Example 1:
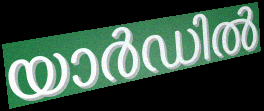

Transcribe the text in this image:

യാർഡിൽ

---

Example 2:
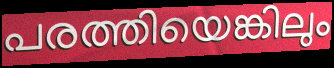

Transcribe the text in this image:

പരത്തിയെങ്കിലും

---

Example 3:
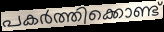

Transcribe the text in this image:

പകർത്തിക്കൊണ്ട്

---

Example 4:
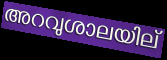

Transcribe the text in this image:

അറവുശാലയില്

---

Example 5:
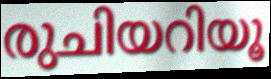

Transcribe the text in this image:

രുചിയറിയൂ